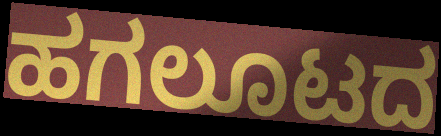
ಹಗಲೂಟದ